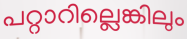
പറ്റാറില്ലെങ്കിലും